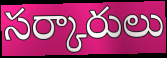
సర్కారులు